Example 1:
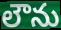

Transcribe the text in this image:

లౌను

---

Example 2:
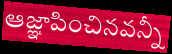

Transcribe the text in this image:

ఆజ్ఞాపించినవన్నీ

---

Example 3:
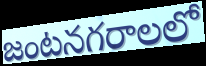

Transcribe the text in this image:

జంటనగరాలలో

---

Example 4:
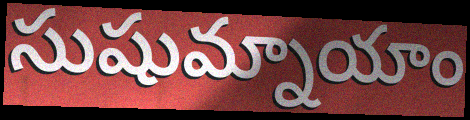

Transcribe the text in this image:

సుషుమ్నాయాం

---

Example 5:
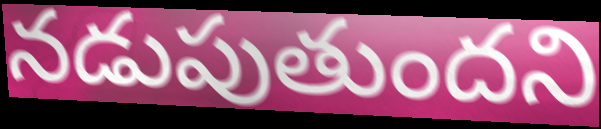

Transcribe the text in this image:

నడుపుతుందని